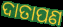
ଦାତାପଣ